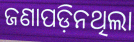
ଜଣାପଡ଼ିନଥିଲା